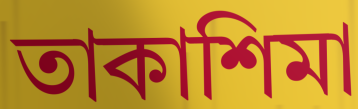
তাকাশিমা